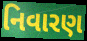
નિવારણ